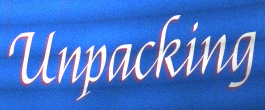
Unpacking